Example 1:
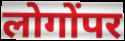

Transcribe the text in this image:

लोगोंपर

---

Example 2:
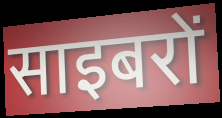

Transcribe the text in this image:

साइबरों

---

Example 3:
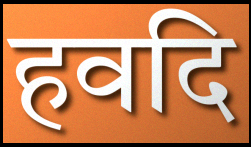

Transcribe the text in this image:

हवदि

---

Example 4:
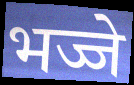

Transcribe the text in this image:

भज्जे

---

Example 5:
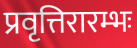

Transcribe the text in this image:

प्रवृत्तिरारम्भः